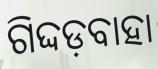
ଗିଦ୍ଦଡ଼ବାହା